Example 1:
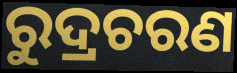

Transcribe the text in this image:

ରୁଦ୍ରଚରଣ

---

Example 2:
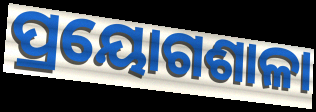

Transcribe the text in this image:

ପ୍ରୟୋଗଶାଳା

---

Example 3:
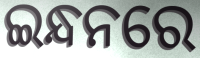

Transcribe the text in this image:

ଇନ୍ଧନରେ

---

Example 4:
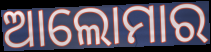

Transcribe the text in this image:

ଆଲୋମାର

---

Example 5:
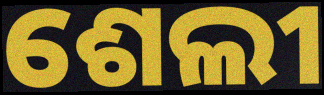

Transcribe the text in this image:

ଶେଲୀ